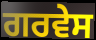
ਗਰਵੇਸ